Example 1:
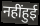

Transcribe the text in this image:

नहींहुई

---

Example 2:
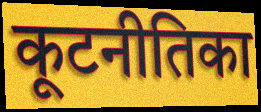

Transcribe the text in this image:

कूटनीतिका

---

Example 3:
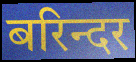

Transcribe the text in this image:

बरिन्दर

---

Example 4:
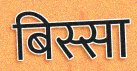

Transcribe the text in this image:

बिस्सा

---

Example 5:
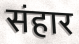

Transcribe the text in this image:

संहार